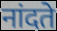
नांदते